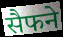
सैफने